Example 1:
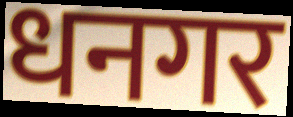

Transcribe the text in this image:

धनगर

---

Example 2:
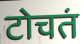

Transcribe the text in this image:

टोचतं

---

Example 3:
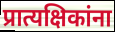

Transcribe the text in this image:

प्रात्यक्षिकांना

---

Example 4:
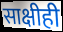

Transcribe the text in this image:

साक्षीही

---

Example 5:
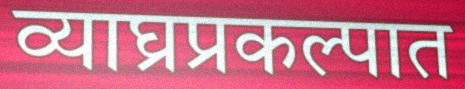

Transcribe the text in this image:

व्याघ्रप्रकल्पात